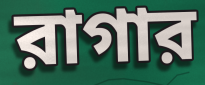
রাগার